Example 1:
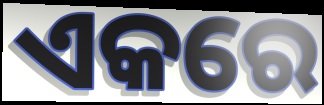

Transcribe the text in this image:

ଏକରେ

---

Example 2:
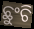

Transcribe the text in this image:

ଛୁଂଚି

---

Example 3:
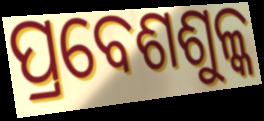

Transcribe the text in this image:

ପ୍ରବେଶଶୁଳ୍କ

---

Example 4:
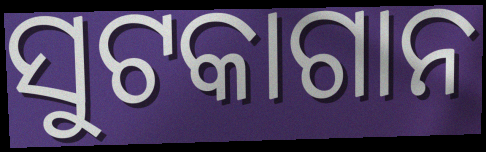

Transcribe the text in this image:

ସୁଟକାଗାନ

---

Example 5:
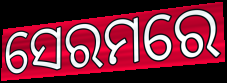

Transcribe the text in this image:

ସେରମରେ